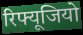
रिफ्यूजियो